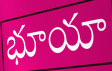
భూయా